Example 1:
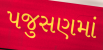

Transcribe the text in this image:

પજુસણમાં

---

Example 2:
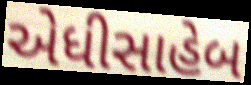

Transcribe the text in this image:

એધીસાહેબ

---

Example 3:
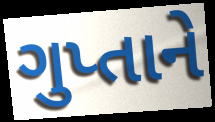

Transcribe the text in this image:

ગુપ્તાને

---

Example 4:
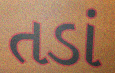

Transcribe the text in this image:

તડાં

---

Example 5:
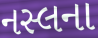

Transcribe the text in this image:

નસ્લના